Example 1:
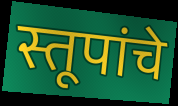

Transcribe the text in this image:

स्तूपांचे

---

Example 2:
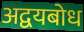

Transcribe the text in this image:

अद्वयबोध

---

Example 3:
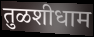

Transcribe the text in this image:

तुळशीधाम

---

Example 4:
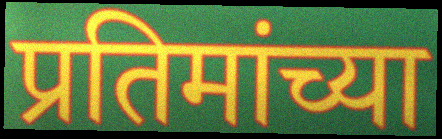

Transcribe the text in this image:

प्रतिमांच्या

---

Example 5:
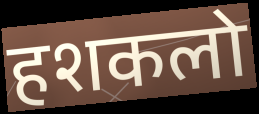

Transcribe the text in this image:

हशकलो